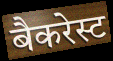
बैकरेस्ट